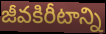
జీవకిరీటాన్ని